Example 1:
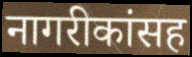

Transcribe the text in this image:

नागरीकांसह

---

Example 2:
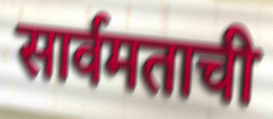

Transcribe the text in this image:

सार्वमताची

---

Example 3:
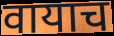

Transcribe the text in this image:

वायाच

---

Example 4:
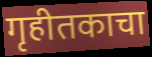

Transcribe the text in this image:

गृहीतकाचा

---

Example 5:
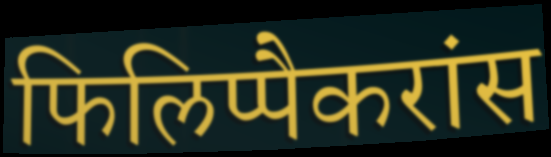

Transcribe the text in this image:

फिलिप्पैकरांस